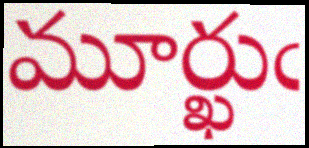
మూర్ఖుఁ